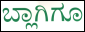
ಬ್ಲಾಗಿಗೂ